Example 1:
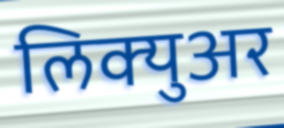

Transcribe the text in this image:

लिक्युअर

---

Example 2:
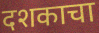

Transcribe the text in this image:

दशकाचा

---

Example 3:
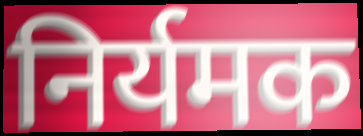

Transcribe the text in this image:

निर्यमक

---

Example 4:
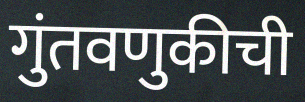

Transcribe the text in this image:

गुंतवणुकीची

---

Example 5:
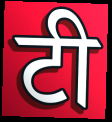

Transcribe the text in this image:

टी